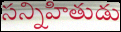
సన్నిహితుడు